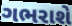
ગભરાશે